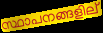
സ്ഥാപനങ്ങളില്